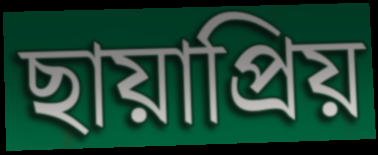
ছায়াপ্রিয়